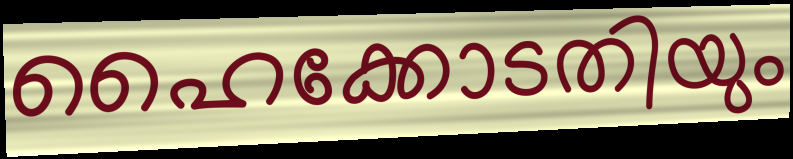
ഹൈക്കോടതിയും